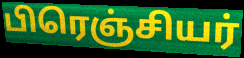
பிரெஞ்சியர்